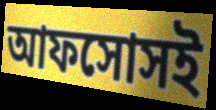
আফসোসই